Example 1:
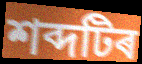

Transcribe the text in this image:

শব্দটিৰ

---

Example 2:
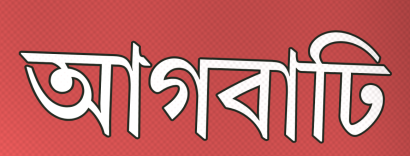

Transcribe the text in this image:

আগবাঢি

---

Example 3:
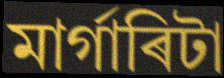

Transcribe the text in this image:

মাৰ্গাৰিটা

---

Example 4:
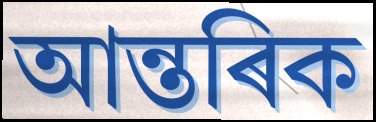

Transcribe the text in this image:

আন্তৰিক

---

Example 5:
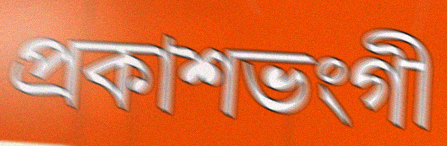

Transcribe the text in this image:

প্ৰকাশভংগী